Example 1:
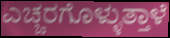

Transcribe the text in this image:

ಎಚ್ಚರಗೊಳ್ಳುತ್ತಾಳೆ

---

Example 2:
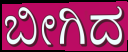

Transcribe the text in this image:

ಬೀಗಿದ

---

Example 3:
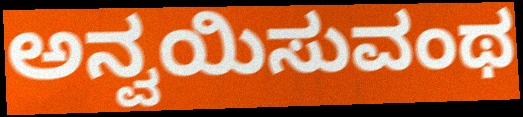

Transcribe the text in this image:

ಅನ್ವಯಿಸುವಂಥ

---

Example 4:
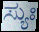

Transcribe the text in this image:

ಸ್ಯುಃ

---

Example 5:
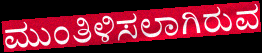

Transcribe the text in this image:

ಮುಂತಿಳಿಸಲಾಗಿರುವ